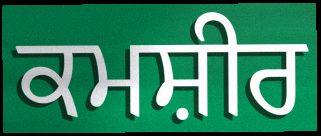
ਕਮਸ਼ੀਰ